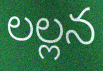
లల్లన